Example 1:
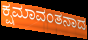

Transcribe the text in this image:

ಕ್ಷಮಾವಂತನಾದ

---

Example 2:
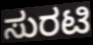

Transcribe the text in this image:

ಸುರಟಿ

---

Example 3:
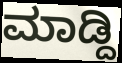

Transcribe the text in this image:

ಮಾಡ್ದಿ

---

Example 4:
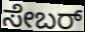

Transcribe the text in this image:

ಸೇಬರ್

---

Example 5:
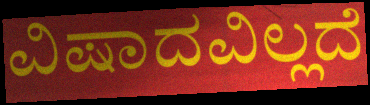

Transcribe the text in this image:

ವಿಷಾದವಿಲ್ಲದೆ